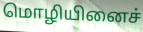
மொழியினைச்